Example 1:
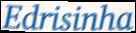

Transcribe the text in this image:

Edrisinha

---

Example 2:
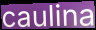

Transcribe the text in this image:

caulina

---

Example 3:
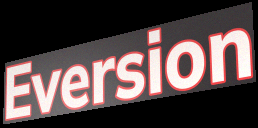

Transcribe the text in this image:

Eversion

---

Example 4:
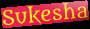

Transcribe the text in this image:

Sukesha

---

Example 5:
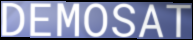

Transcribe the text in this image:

DEMOSAT